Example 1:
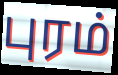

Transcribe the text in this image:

புரம்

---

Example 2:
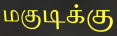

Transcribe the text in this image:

மகுடிக்கு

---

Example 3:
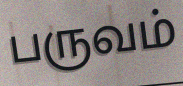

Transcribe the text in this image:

பருவம்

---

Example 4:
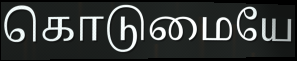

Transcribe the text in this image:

கொடுமையே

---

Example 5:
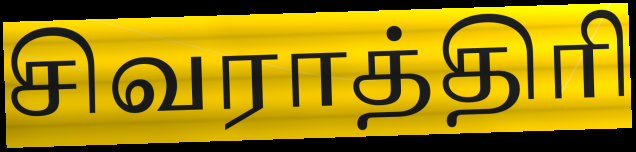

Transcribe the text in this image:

சிவராத்திரி